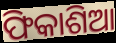
ଫିକାଶିଆ